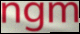
ngm